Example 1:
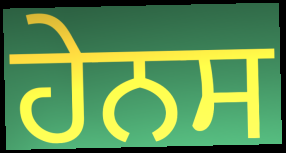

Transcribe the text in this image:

ਹੇਨਸ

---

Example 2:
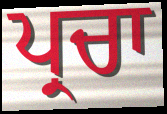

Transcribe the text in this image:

ਪ੍ਰਚਾ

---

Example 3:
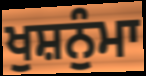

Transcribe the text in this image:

ਖੁਸ਼ਨੁੰਮਾ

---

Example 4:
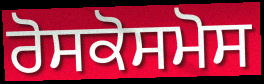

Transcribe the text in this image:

ਰੋਸਕੋਸਮੋਸ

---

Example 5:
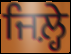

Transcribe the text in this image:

ਜਿਲ਼੍ਹੇ